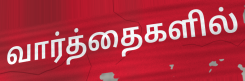
வார்த்தைகளில்